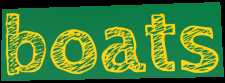
boats